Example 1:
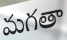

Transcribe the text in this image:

మగతా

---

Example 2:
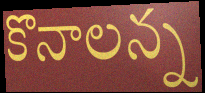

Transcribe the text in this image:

కొనాలన్న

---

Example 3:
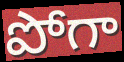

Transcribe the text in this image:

పోగా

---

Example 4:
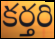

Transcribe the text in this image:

కర్తరి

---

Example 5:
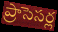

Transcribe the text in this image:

ప్రాసెసర్ల